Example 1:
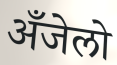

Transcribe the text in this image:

अँजेलो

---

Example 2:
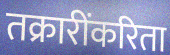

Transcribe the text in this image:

तक्रारींकरिता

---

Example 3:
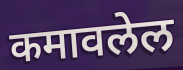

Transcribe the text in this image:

कमावलेल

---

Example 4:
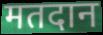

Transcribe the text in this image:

मतदान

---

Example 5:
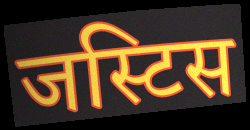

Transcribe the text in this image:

जस्टिस